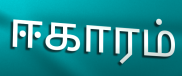
ஈகாரம்